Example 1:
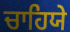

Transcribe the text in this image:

ਚਾਹਿਯੇ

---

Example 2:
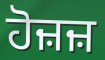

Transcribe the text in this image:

ਹੋਜ਼ਜ਼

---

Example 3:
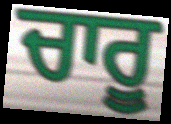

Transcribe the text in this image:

ਚਾਰੂ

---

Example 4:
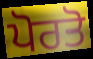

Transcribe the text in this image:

ਪੋਰਤੋ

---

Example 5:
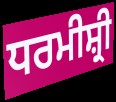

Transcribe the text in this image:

ਧਰਮੀਸ਼੍ਰੀ